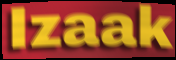
Izaak